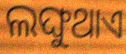
ଲଙ୍ଘୁଥାଏ